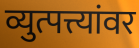
व्युत्पत्त्यांवर